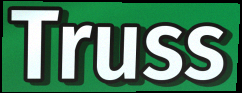
Truss